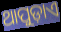
ଥାପୁଡ଼ାଏ